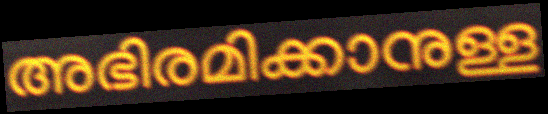
അഭിരമിക്കാനുള്ള